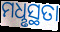
ମଧୢସ୍ଥତା